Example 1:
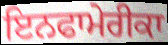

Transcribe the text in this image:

ਇਨਫਾਮੇਰੀਕਾ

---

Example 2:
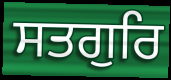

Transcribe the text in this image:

ਸਤਗੁਰਿ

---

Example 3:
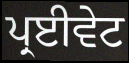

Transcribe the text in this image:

ਪ੍ਰਈਵੇਟ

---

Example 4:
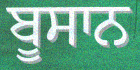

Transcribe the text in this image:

ਬੂਸਾਨ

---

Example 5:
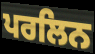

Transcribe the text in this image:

ਪਰਲਿਨ